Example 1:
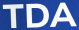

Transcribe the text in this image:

TDA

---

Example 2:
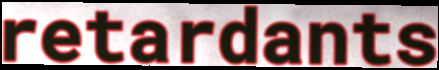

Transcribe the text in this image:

retardants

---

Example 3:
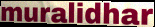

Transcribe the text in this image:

muralidhar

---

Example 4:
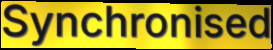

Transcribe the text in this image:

Synchronised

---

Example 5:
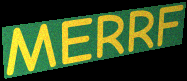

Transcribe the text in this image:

MERRF